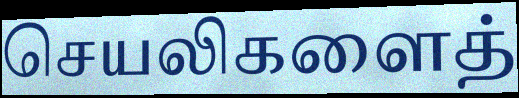
செயலிகளைத்